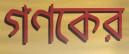
গণকের